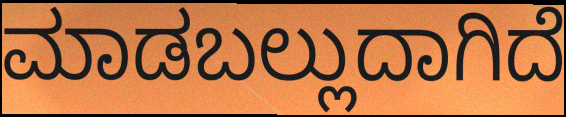
ಮಾಡಬಲ್ಲುದಾಗಿದೆ